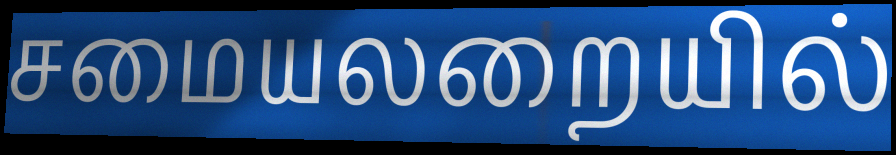
சமையலறையில்